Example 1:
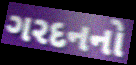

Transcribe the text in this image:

ગરદનનો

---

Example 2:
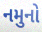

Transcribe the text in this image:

નમુનો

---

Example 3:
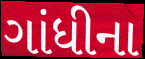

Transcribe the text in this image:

ગાંધીના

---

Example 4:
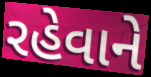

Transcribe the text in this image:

રહેવાને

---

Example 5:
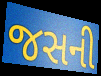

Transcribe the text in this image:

જસની